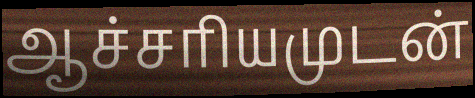
ஆச்சரியமுடன்